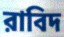
রাবিদ